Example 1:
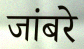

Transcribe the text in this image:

जांबरे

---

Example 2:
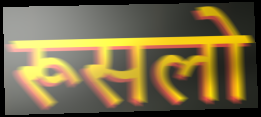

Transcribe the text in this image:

रूसलो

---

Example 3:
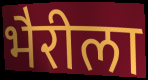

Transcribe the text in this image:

भैरीला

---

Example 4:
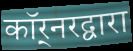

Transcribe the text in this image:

कॉर्नरद्वारा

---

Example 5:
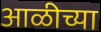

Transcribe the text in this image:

आळीच्या